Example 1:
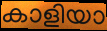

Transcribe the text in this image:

കാളിയാ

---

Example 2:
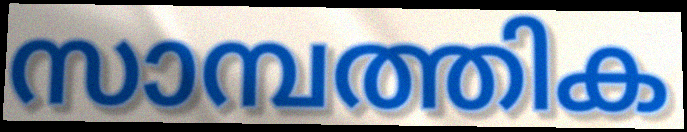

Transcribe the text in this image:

സാമ്പത്തിക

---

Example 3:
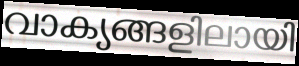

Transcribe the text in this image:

വാക്യങ്ങളിലായി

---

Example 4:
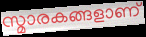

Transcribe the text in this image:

സ്മാരകങ്ങളാണ്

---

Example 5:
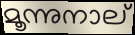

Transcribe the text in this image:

മൂന്നുനാല്